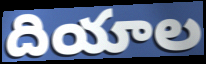
దియాల